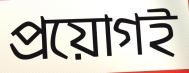
প্রয়োগই